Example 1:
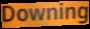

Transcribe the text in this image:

Downing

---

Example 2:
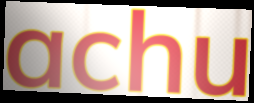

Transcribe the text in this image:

achu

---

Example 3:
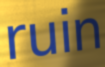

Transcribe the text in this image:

ruin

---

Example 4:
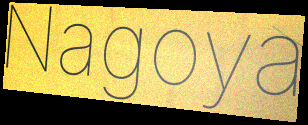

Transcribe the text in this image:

Nagoya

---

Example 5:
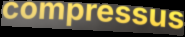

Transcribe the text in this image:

compressus